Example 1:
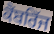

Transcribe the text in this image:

ਕੈਂਬਰਿੱਜ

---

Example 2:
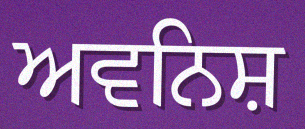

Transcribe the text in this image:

ਅਵਨਿਸ਼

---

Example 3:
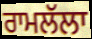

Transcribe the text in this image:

ਰਾਮਲੱਲਾ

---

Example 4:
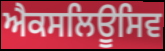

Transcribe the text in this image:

ਐਕਸਲਿਊਸਿਵ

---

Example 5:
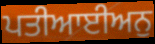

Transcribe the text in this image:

ਪਤੀਆਈਅਨੁ